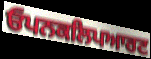
ਓਪਨਕਲਿਪਆਰਟ